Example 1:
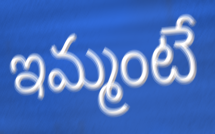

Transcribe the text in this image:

ఇమ్మంటే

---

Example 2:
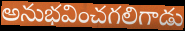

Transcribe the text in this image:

అనుభవించగలిగాడు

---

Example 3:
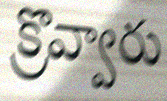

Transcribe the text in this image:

క్రొవ్వారు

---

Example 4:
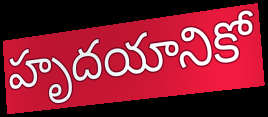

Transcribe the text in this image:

హృదయానికో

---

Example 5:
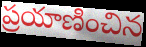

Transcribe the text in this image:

ప్రయాణించిన